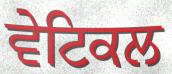
ਵੇਟਿਕਲ